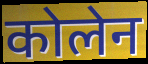
कोलेन